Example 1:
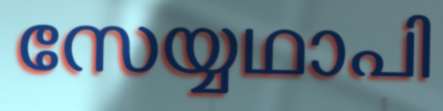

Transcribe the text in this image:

സേയ്യഥാപി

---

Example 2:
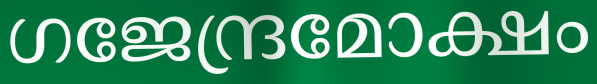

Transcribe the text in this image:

ഗജേന്ദ്രമോക്ഷം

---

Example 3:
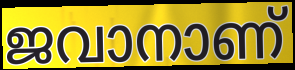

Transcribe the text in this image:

ജവാനാണ്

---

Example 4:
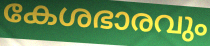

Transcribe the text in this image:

കേശഭാരവും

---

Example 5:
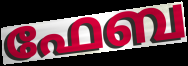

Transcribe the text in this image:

ഫേബ